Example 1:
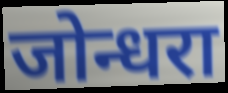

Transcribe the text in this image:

जोन्धरा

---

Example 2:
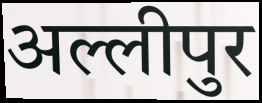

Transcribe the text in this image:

अल्लीपुर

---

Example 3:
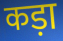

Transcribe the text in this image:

कड़ा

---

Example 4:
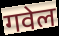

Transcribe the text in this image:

गवेल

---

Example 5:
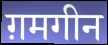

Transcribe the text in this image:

ग़मगीन